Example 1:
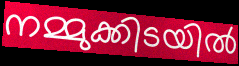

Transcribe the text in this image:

നമ്മുക്കിടയിൽ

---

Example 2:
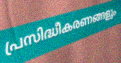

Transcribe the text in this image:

പ്രസിദ്ധീകരണങ്ങളും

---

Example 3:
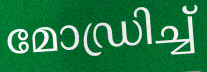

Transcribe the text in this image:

മോഡ്രിച്ച്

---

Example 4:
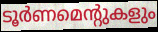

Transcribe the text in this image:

ടൂർണമെന്റുകളും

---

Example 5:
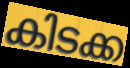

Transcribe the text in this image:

കിടക്ക